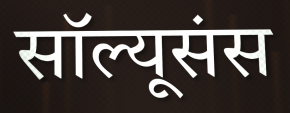
सॉल्यूसंस